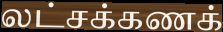
லட்சக்கணக்